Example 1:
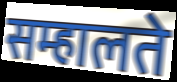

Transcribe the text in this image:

सम्हालते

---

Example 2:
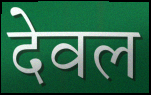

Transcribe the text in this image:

देवल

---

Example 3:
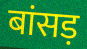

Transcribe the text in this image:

बांसड़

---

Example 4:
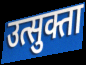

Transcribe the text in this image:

उत्सुक्ता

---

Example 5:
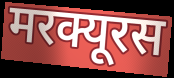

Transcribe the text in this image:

मरक्यूरस